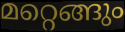
മറ്റെങ്ങും